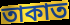
তাকাত